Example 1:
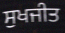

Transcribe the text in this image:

ਸੁਖਜੀਤ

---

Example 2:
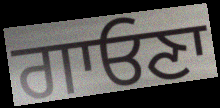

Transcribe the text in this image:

ਗਾਓਣਾ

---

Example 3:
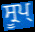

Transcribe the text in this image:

ਸ੍ਰੂਪ੍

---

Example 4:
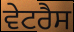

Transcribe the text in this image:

ਵੇਟਰੈਸ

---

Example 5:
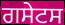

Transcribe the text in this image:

ਗਸੇਟਸ